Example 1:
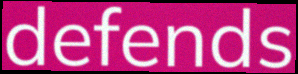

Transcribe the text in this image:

defends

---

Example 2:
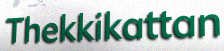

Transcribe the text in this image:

Thekkikattan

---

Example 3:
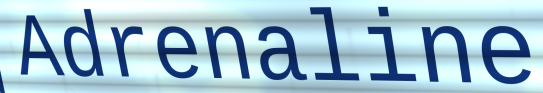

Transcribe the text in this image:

Adrenaline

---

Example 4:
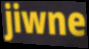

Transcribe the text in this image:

jiwne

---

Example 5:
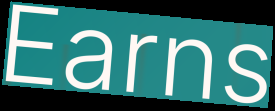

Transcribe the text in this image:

Earns